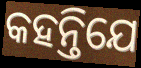
କହନ୍ତିଯେ